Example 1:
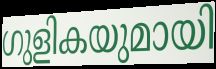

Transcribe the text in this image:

ഗുളികയുമായി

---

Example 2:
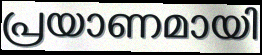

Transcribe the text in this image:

പ്രയാണമായി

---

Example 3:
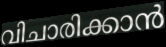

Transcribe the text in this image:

വിചാരിക്കാൻ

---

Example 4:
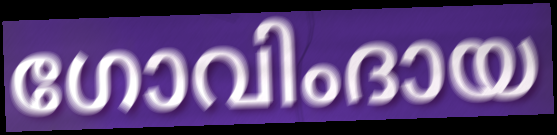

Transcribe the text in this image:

ഗോവിംദായ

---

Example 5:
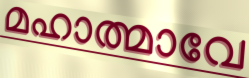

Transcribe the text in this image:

മഹാത്മാവേ